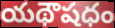
యథౌషధం